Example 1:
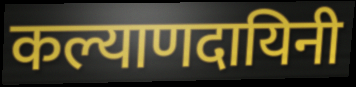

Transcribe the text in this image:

कल्याणदायिनी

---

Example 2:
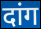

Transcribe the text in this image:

दांग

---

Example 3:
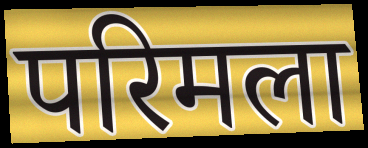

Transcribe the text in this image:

परिमला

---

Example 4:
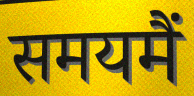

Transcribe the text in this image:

समयमैं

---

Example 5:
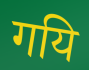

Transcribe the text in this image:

गयि